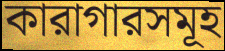
কারাগারসমূহ